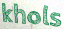
khols